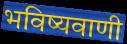
भविष्यवाणी